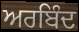
ਅਰਬਿੰਦ